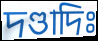
দণ্ডাদিঃ